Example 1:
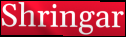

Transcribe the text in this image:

Shringar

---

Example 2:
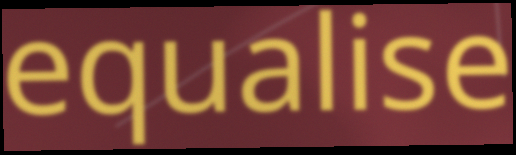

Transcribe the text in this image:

equalise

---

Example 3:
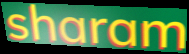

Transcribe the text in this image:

sharam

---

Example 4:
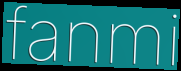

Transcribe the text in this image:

fanmi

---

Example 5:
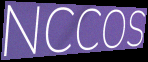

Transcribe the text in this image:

NCCOS